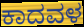
ಕಾದವಳ